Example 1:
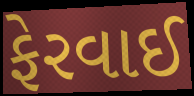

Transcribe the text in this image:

ફેરવાઈ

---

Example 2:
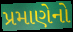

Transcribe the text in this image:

પ્રમાણેનો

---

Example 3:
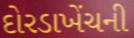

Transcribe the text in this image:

દોરડાખેંચની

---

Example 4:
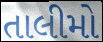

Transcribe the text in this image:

તાલીમો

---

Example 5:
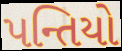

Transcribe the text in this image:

પન્તિયો